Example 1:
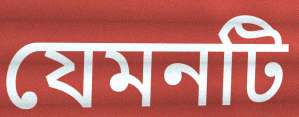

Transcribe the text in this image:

যেমনটি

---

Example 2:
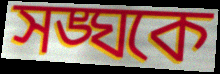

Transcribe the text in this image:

সঙ্ঘকে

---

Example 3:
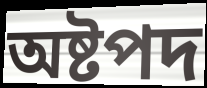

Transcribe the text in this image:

অষ্টপদ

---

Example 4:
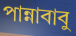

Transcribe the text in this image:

পান্নাবাবু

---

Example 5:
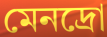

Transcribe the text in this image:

মেনদ্রো